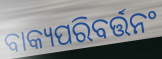
ବାକ୍ୟପରିବର୍ତ୍ତନଂ